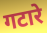
गटारे